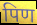
पिण